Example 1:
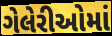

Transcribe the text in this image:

ગેલેરીઓમાં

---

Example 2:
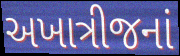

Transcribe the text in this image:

અખાત્રીજનાં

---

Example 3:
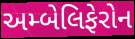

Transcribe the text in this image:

અમ્બેલિફેરોન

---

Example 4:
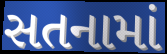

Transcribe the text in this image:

સતનામાં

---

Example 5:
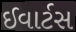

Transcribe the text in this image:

ઈવાર્ટસ